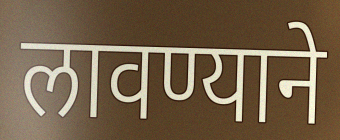
लावण्याने